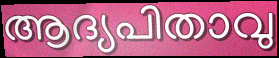
ആദ്യപിതാവു